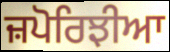
ਜ਼ਪੋਰਿਝੀਆ